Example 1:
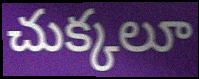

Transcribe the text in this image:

చుక్కలూ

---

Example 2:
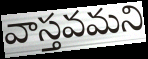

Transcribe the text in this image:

వాస్తవమని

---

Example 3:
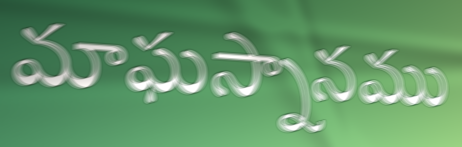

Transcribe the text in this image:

మాఘస్నానము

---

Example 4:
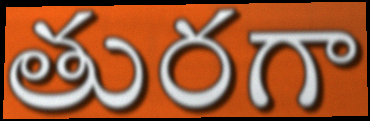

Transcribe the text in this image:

తురగా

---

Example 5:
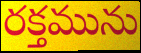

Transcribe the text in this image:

రక్తమును